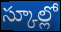
స్కూల్లో